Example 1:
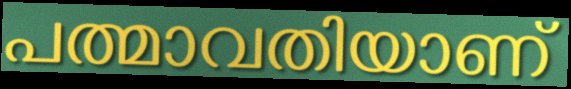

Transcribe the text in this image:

പത്മാവതിയാണ്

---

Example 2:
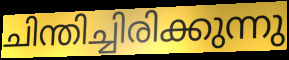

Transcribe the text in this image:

ചിന്തിച്ചിരിക്കുന്നു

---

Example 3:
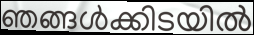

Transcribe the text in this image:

ഞങ്ങൾക്കിടയിൽ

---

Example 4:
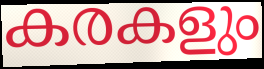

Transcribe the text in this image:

കരകളും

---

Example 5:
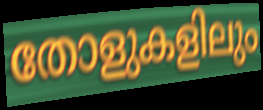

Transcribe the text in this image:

തോളുകളിലും